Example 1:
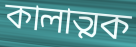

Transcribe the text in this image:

কালাত্মক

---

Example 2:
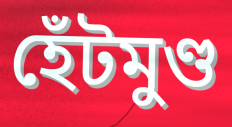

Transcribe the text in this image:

হেঁটমুণ্ড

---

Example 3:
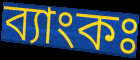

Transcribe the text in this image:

ব্যাংকঃ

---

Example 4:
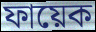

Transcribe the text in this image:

ফায়েক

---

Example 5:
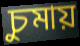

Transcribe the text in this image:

চুমায়